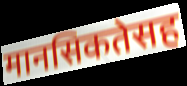
मानसिकतेसह